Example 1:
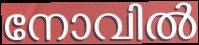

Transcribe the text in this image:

നോവിൽ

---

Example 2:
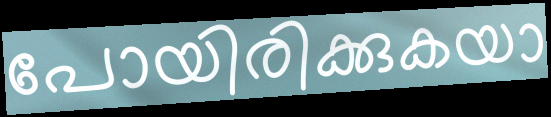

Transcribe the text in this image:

പോയിരിക്കുകയാ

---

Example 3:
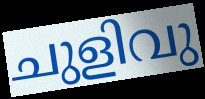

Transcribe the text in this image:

ചുളിവു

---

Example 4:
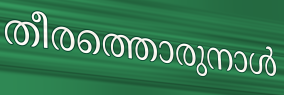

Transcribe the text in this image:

തീരത്തൊരുനാൾ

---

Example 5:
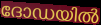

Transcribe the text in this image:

ദോഡയിൽ